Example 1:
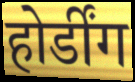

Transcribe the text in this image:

होर्डींग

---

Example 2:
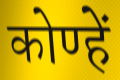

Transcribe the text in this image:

कोण्हें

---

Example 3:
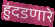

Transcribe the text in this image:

हुंदडणारे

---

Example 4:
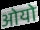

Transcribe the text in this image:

ओयो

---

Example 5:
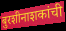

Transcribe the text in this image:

बुरशीनाशकांची